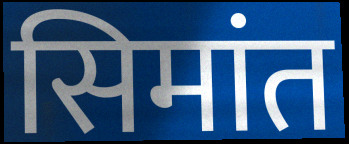
सिमांत